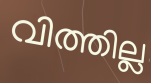
വിത്തില്ല